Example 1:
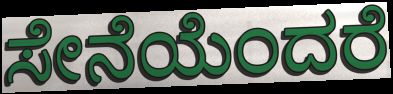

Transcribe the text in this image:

ಸೇನೆಯೆಂದರೆ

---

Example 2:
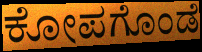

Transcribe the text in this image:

ಕೋಪಗೊಂಡೆ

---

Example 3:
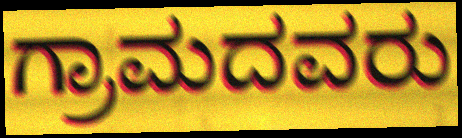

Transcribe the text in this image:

ಗ್ರಾಮದವರು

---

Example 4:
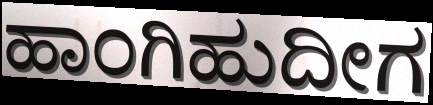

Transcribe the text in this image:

ಹಾಂಗಿಹುದೀಗ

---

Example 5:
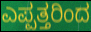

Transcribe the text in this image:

ಎಪ್ಪತ್ತರಿಂದ